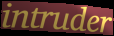
intruder